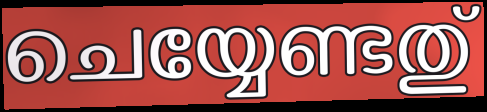
ചെയ്യേണ്ടതു്